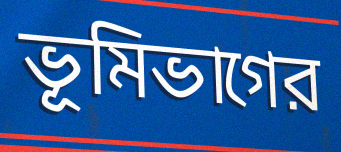
ভূমিভাগের